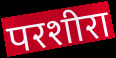
परशीरा